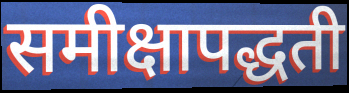
समीक्षापद्धती